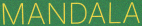
MANDALA